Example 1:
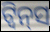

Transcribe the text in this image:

ଟ୍ବିନ୍‌ସ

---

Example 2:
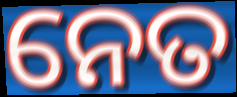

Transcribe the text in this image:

ନେତ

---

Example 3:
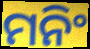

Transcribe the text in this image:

ମନିଂ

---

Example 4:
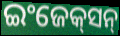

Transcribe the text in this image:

ଇଂଜେକ୍‌ସନ୍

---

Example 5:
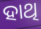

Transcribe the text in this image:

ହାଥି